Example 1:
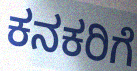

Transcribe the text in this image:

ಕನಕರಿಗೆ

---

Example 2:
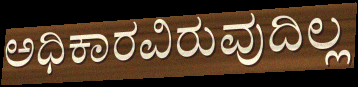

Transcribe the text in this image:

ಅಧಿಕಾರವಿರುವುದಿಲ್ಲ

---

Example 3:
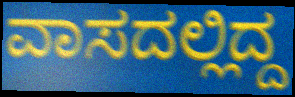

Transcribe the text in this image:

ವಾಸದಲ್ಲಿದ್ದ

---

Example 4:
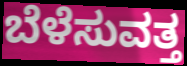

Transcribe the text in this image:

ಬೆಳೆಸುವತ್ತ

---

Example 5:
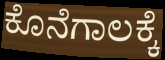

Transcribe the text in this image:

ಕೊನೆಗಾಲಕ್ಕೆ